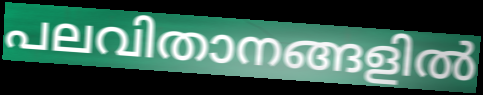
പലവിതാനങ്ങളിൽ